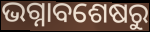
ଭଗ୍ନାବଶେଷରୁ